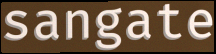
sangate